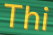
Thi